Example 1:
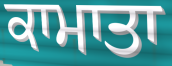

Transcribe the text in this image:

ਕਾਮਾਤਾ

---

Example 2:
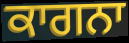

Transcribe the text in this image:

ਕਾਗਨਾ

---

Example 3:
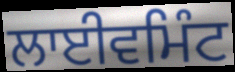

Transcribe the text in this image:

ਲਾਈਵਮਿੰਟ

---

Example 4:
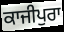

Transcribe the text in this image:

ਕਾਜੀਪੁਰਾ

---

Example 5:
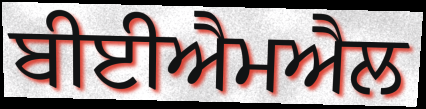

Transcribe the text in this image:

ਬੀਈਐਮਐਲ